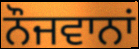
ਨੌਜਵਾਨਾਂ